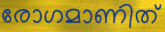
രോഗമാണിത്